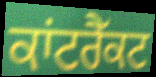
ਕਾਂਟਰੈੱਕਟ